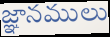
జ్ఞానములు